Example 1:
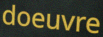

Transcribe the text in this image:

doeuvre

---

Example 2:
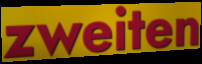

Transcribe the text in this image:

zweiten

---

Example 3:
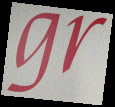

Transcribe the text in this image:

gr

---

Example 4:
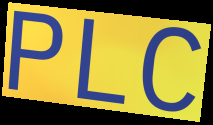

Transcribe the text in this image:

PLC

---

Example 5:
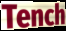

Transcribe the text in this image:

Tench